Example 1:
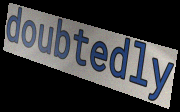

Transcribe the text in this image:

doubtedly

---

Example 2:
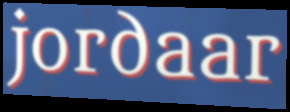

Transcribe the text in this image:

jordaar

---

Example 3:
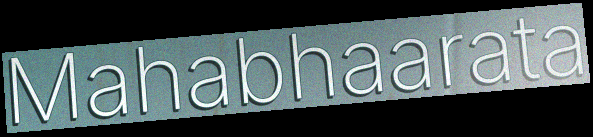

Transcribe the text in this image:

Mahabhaarata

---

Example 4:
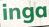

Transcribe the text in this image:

inga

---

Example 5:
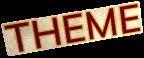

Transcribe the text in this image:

THEME